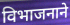
विभाजनाने